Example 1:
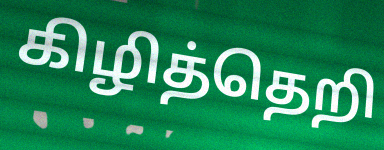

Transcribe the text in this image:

கிழித்தெறி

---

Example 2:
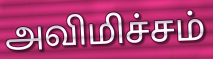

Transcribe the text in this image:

அவிமிச்சம்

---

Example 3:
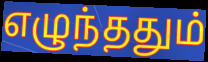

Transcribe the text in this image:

எழுந்ததும்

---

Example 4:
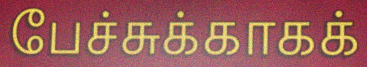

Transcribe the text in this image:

பேச்சுக்காகக்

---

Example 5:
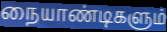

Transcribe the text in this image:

நையாண்டிகளும்